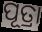
ପୂତ୍ରା